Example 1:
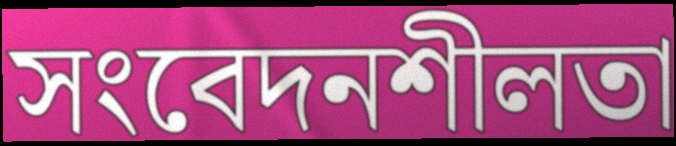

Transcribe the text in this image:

সংবেদনশীলতা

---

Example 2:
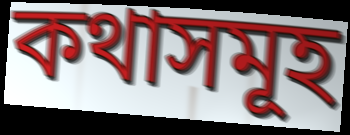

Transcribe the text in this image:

কথাসমূহ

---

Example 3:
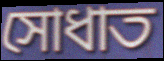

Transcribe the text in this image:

সোধাত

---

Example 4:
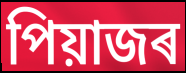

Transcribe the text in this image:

পিয়াজৰ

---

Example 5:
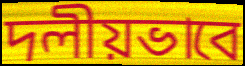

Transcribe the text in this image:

দলীয়ভাবে